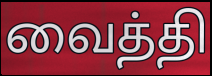
வைத்தி